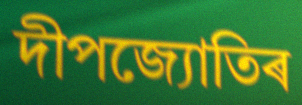
দীপজ্যোতিৰ